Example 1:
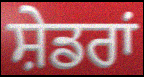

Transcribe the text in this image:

ਸ਼ੇਡਰਾਂ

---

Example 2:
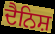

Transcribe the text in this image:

ਦੈਨਿਸ਼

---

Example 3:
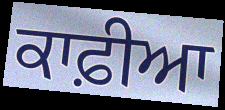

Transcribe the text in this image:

ਕਾਫ਼ੀਆ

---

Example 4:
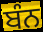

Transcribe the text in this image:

ਬੰਨ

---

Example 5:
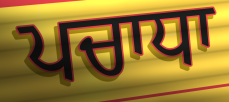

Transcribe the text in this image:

ਪਚਾਧਾ